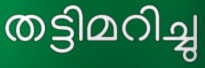
തട്ടിമറിച്ചു